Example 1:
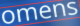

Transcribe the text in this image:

omens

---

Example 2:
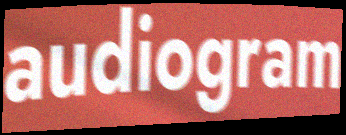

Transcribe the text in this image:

audiogram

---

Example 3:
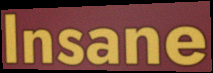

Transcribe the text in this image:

Insane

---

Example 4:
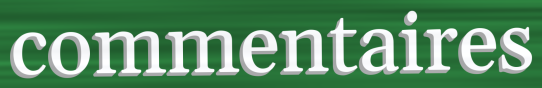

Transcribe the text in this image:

commentaires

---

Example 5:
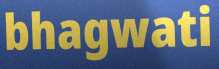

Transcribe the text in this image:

bhagwati